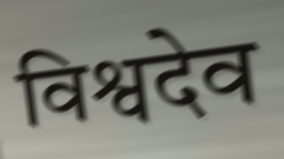
विश्वदेव